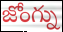
జోంగ్ను